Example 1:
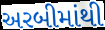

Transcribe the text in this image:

અરબીમાંથી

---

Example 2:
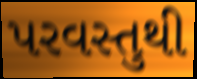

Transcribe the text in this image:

પરવસ્તુથી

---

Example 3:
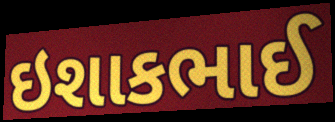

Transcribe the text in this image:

ઇશાકભાઈ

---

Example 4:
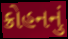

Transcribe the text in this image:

ક્રોહનનું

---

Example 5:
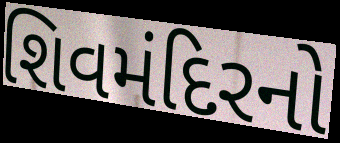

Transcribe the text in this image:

શિવમંદિરનો